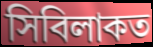
সিবিলাকত